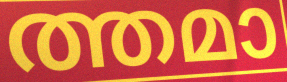
ത്തമാ